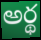
అర్థ